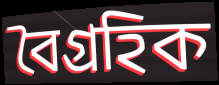
বৈগ্রহিক